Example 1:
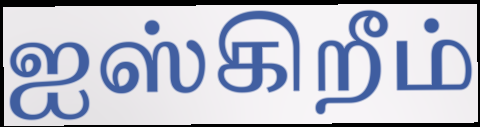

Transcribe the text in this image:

ஐஸ்கிறீம்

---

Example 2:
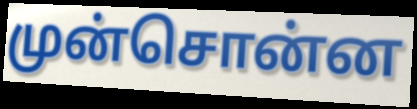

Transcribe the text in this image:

முன்சொன்ன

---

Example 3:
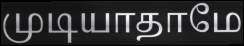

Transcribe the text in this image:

முடியாதாமே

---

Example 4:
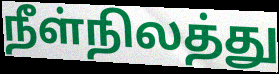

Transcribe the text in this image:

நீள்நிலத்து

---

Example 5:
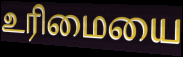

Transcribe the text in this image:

உரிமையை